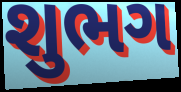
શુભગ